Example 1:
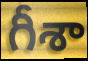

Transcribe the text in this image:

గీశా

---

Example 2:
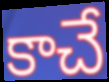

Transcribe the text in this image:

కాచే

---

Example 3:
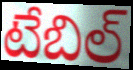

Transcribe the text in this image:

టేబిల్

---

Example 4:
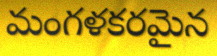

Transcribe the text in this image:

మంగళకరమైన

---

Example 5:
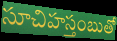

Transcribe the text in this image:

సూచిహస్తంబుతో